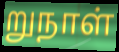
றுநாள்